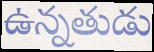
ఉన్నతుడు